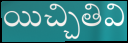
యిచ్చితివి